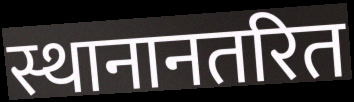
स्थानानतरित